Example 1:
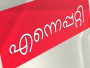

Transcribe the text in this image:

എന്നെപ്പറ്റി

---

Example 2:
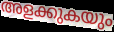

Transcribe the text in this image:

അളക്കുകയും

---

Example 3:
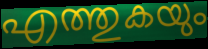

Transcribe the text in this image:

എത്തുകയും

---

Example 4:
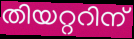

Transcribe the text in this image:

തിയറ്ററിന്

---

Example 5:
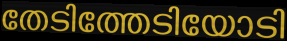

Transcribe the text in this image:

തേടിത്തേടിയോടി